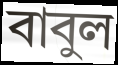
বাবুল